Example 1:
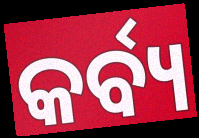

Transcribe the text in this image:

କର୍ବ୍ୟ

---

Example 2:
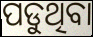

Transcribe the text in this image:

ପଡୁଥିବା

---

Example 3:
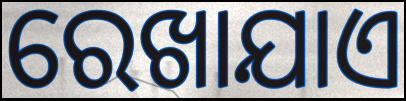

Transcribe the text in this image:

ରେଖାଯାଏ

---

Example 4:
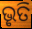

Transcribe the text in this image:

ଭୃତି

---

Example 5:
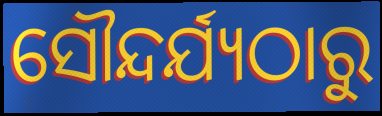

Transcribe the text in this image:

ସୌନ୍ଦର୍ଯ୍ୟଠାରୁ